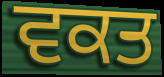
ਵਕਤ